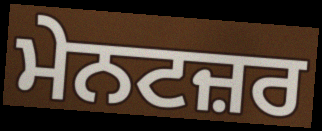
ਮੇਨਟਜ਼ਰ